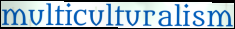
multiculturalism